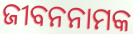
ଜୀବନନାମକ